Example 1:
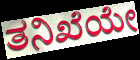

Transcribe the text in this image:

ತನಿಖೆಯೇ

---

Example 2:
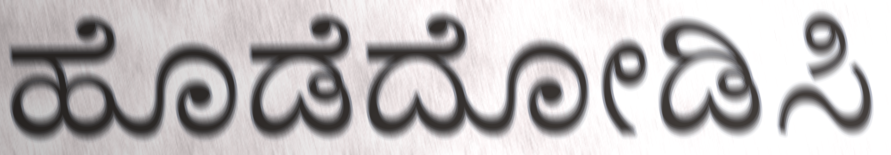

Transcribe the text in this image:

ಹೊಡೆದೋಡಿಸಿ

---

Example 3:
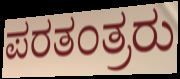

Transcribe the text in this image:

ಪರತಂತ್ರರು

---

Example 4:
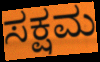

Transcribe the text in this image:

ಸಕ್ಷಮ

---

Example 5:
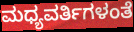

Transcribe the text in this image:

ಮಧ್ಯವರ್ತಿಗಳಂತೆ